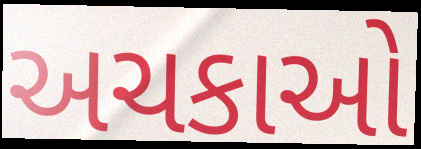
અચકાઓ